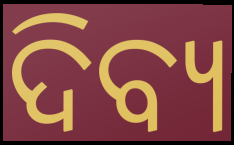
ଦିବ୍ୟ